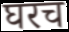
घरच